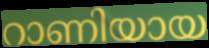
റാണിയായ